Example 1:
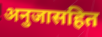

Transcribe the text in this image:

अनुजासहित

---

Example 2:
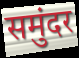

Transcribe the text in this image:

समुंदर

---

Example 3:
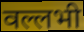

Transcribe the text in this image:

वल्लभी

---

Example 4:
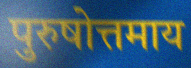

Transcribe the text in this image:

पुरुषोत्तमाय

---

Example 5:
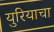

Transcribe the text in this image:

युरियाचा